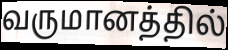
வருமானத்தில்